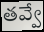
తవ్వే